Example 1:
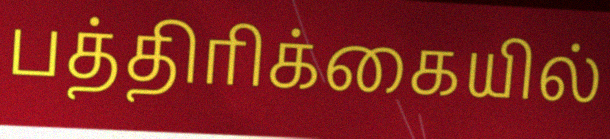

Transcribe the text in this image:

பத்திரிக்கையில்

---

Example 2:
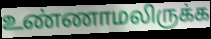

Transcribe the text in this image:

உண்ணாமலிருக்க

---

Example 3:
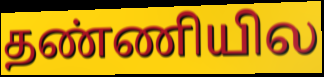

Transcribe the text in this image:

தண்ணியில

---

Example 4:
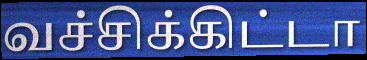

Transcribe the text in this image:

வச்சிக்கிட்டா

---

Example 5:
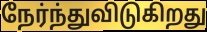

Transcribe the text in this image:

நேர்ந்துவிடுகிறது